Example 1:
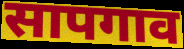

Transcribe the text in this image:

सापगाव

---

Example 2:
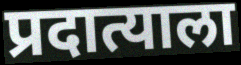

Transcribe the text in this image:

प्रदात्याला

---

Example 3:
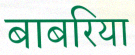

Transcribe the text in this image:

बाबरिया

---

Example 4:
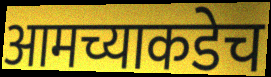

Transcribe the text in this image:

आमच्याकडेच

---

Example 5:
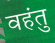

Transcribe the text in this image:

वहंतु